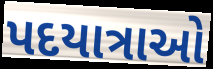
પદયાત્રાઓ